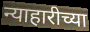
न्याहारीच्या